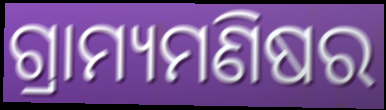
ଗ୍ରାମ୍ୟମଣିଷର